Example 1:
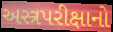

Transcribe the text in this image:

અસ્ત્રપરીક્ષાનો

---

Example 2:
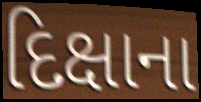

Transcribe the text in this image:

દિક્ષાના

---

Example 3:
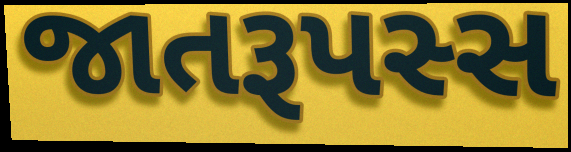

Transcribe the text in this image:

જાતરૂપસ્સ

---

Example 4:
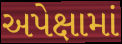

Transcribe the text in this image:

અપેક્ષામાં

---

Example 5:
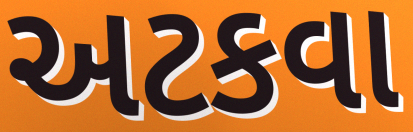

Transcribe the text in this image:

અટકવા